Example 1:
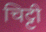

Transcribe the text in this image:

चिट्टी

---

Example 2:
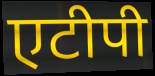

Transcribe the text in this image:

एटीपी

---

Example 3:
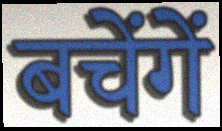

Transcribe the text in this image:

बचेंगें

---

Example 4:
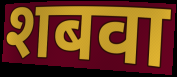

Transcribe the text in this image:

शबवा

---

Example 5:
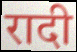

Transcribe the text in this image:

रादी